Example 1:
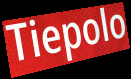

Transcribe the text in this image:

Tiepolo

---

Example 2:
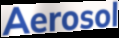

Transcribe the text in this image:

Aerosol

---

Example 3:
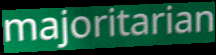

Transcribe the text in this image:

majoritarian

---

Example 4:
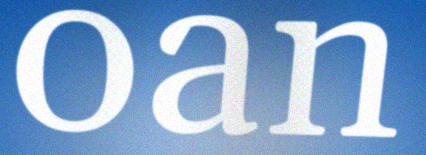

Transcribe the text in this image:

oan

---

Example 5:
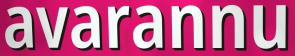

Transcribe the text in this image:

avarannu